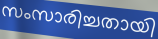
സംസാരിച്ചതായി